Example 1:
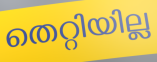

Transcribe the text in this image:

തെറ്റിയില്ല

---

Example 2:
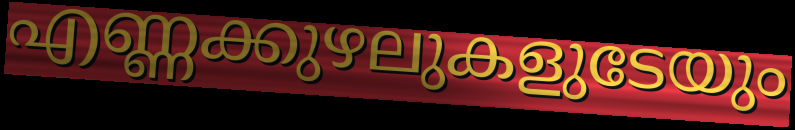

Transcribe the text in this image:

എണ്ണക്കുഴലുകളുടേയും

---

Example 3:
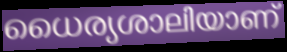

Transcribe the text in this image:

ധൈര്യശാലിയാണ്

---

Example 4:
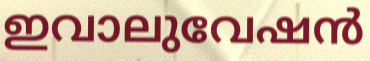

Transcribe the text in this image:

ഇവാലുവേഷൻ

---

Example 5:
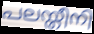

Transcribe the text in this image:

പലസ്തീനി